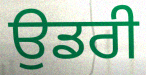
ਉਡਰੀ